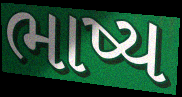
ભાષ્ય